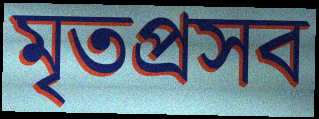
মৃতপ্রসব